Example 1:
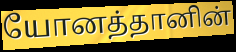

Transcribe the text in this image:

யோனத்தானின்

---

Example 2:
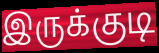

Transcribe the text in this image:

இருக்குடி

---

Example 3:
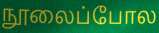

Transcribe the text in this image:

நூலைப்போல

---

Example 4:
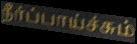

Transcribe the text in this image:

நீர்ப்பாய்ச்சும்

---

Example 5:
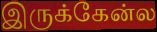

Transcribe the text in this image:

இருக்கேன்ல